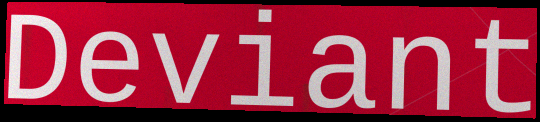
Deviant